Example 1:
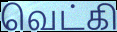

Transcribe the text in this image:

வெட்கி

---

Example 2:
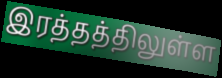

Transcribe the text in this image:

இரத்தத்திலுள்ள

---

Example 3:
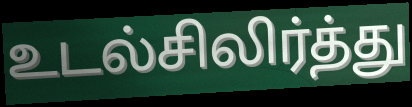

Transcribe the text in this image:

உடல்சிலிர்த்து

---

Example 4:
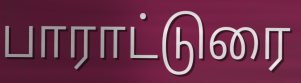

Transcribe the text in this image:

பாராட்டுரை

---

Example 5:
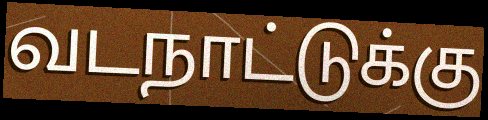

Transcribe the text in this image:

வடநாட்டுக்கு